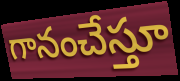
గానంచేస్తూ